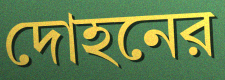
দোহনের